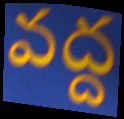
వద్ద